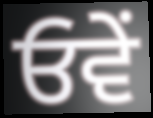
ਓਵੇਂ